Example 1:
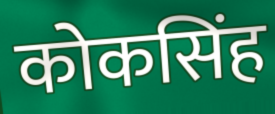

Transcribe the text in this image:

कोकसिंह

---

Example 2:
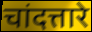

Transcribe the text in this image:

चांदत्तारे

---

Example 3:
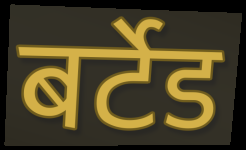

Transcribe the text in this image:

बर्टेड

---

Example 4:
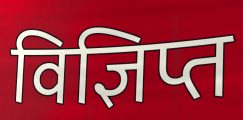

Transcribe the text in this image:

विज्ञिप्त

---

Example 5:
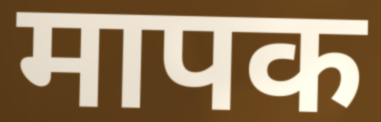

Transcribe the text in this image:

मापक